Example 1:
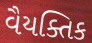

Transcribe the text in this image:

વૈયક્તિક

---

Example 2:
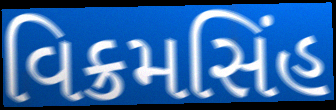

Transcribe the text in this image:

વિક્રમસિંહ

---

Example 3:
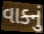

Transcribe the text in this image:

વાક્નું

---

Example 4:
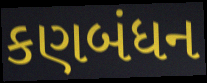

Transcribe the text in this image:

કણબંધન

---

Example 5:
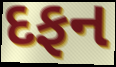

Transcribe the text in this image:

દફન